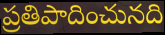
ప్రతిపాదించునది